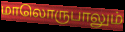
மாலொருபாலும்